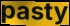
pasty